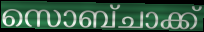
സൊബ്ചാക്ക്